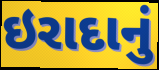
ઇરાદાનું